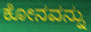
ಕೋನವನ್ನು